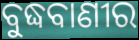
ବୁଦ୍ଧବାଣୀର